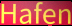
Hafen